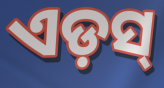
ଏଡ଼ସ୍